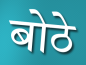
बोठे